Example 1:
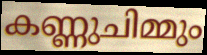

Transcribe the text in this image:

കണ്ണുചിമ്മും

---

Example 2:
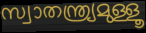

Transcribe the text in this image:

സ്വാതന്ത്ര്യമുള്ളൂ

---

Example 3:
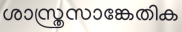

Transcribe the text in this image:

ശാസ്ത്രസാങ്കേതിക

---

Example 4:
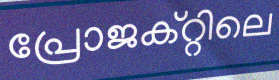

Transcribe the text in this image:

പ്രോജക്റ്റിലെ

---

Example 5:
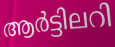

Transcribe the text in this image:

ആർട്ടിലറി